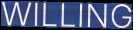
WILLING